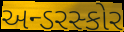
અન્ડરસ્કોર